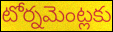
టోర్నమెంట్లకు